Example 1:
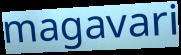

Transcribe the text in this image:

magavari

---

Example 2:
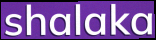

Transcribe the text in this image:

shalaka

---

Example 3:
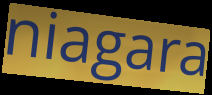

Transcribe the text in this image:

niagara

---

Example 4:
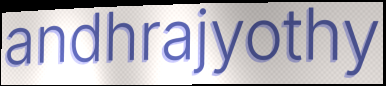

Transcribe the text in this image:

andhrajyothy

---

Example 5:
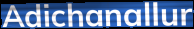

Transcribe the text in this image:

Adichanallur